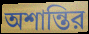
অশান্তির